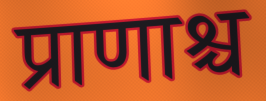
प्राणाश्च